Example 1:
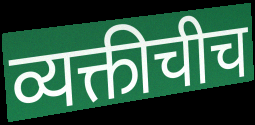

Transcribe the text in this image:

व्यक्तीचीच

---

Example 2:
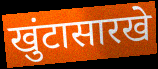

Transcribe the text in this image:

खुंटासारखे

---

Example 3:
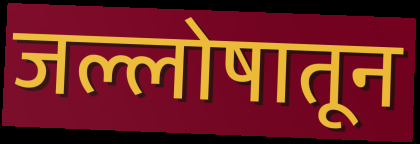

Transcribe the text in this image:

जल्लोषातून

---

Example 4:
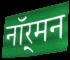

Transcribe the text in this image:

नॉर्मन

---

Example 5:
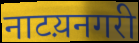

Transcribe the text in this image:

नाटय़नगरी